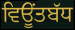
ਵਿਊਂਤਬੱਧ